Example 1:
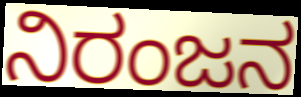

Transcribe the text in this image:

ನಿರಂಜನ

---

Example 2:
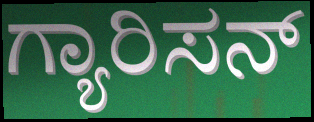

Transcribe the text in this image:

ಗ್ಯಾರಿಸನ್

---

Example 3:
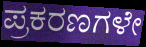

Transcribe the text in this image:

ಪ್ರಕರಣಗಳೇ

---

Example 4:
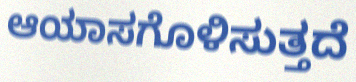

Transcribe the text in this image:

ಆಯಾಸಗೊಳಿಸುತ್ತದೆ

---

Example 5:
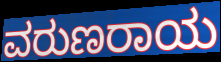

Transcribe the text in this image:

ವರುಣರಾಯ